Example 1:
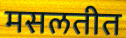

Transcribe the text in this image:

मसलतीत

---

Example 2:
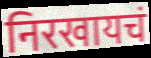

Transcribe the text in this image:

निरखायचं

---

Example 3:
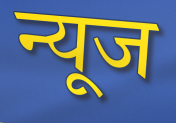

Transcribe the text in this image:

न्यूज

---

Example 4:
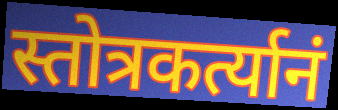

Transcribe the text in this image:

स्तोत्रकर्त्यानं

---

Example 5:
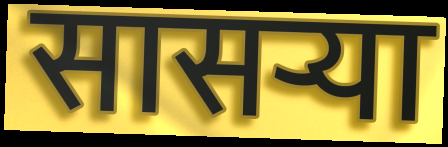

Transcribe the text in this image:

सासर्‍या